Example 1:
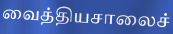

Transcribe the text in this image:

வைத்தியசாலைச்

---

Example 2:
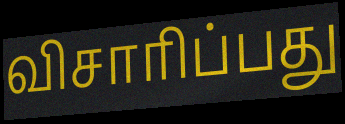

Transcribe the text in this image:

விசாரிப்பது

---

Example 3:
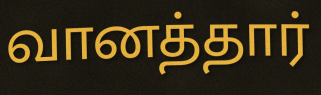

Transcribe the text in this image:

வானத்தார்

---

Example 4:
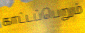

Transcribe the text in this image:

காட்டப்பெறும்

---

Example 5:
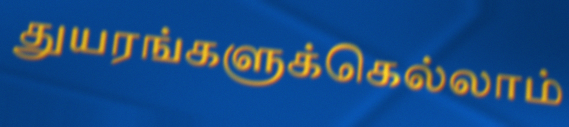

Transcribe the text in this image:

துயரங்களுக்கெல்லாம்